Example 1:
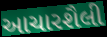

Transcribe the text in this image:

આચારશૈલી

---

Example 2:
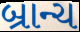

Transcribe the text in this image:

બ્રાન્ચ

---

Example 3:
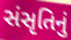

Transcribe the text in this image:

સંસૃતિનું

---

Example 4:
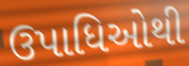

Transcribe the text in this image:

ઉપાધિઓથી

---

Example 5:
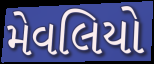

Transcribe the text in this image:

મેવલિયો